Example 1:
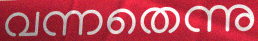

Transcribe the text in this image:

വന്നതെന്നു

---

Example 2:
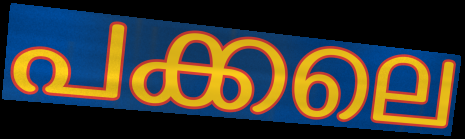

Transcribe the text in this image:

പക്കലെ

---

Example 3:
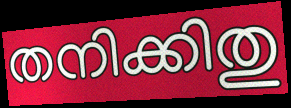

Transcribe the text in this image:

തനിക്കിതു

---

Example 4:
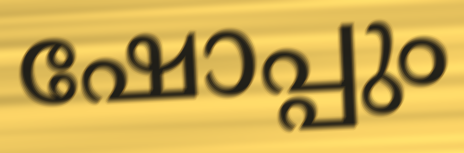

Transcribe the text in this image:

ഷോപ്പും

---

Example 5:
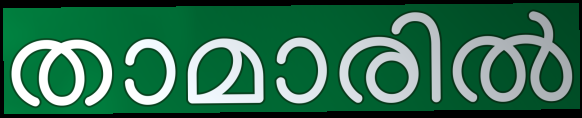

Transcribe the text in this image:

താമാരിൽ